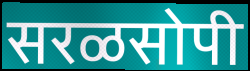
सरळसोपी